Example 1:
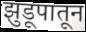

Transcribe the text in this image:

झुडूपातून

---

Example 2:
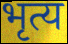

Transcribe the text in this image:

भृत्य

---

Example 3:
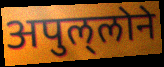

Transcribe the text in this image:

अपुल्लोने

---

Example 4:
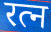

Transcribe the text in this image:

रत्न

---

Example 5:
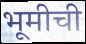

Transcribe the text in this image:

भूमीची